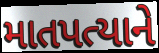
માતપત્યાને